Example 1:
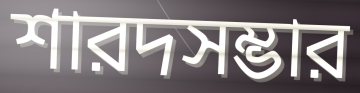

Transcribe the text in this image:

শারদসম্ভার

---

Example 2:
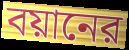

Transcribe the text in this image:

বয়ানের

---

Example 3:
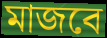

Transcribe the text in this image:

মাজবে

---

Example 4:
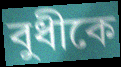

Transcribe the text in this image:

বুধীকে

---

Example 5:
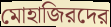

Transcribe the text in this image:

মোহাজিরদের